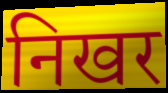
निखर